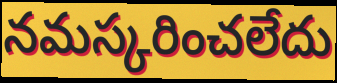
నమస్కరించలేదు